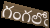
గంగలోఁ